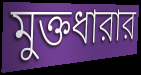
মুক্তধারার